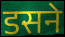
डसने